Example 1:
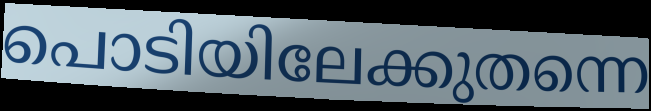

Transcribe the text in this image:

പൊടിയിലേക്കുതന്നെ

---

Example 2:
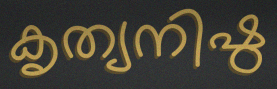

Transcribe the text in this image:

കൃത്യനിഷ്ഠ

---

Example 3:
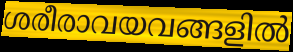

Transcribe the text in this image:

ശരീരാവയവങ്ങളിൽ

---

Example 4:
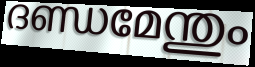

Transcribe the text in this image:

ദണ്ഡമേന്തും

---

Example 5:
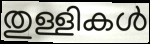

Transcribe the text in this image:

തുള്ളികൾ